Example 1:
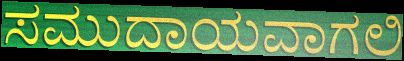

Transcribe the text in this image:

ಸಮುದಾಯವಾಗಲಿ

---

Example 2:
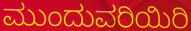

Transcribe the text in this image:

ಮುಂದುವರಿಯಿರಿ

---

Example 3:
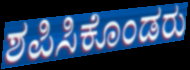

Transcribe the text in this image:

ಶಪಿಸಿಕೊಂಡರು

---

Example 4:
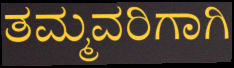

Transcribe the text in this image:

ತಮ್ಮವರಿಗಾಗಿ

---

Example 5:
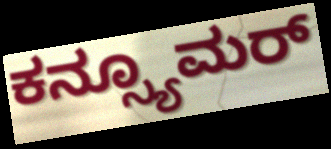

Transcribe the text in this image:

ಕನ್ಸ್ಯೂಮರ್